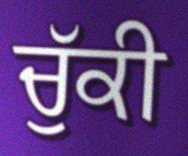
ਚੁੱਕੀ